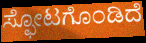
ಸ್ಫೋಟಗೊಂಡಿದೆ